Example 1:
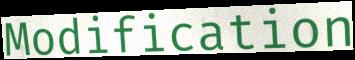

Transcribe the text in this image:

Modification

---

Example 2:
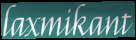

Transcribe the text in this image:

laxmikant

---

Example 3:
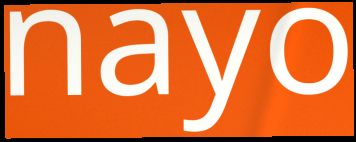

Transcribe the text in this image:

nayo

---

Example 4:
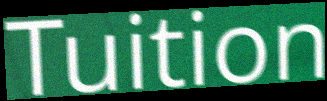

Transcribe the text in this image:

Tuition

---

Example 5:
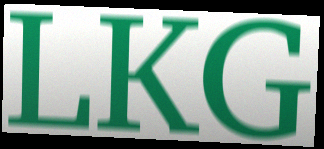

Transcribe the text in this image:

LKG